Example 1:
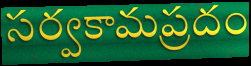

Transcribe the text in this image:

సర్వకామప్రదం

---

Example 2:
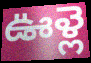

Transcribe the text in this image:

ఊళ్లె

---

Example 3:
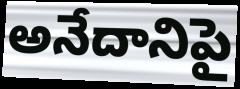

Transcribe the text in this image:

అనేదానిపై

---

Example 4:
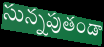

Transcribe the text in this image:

సున్నపుతండా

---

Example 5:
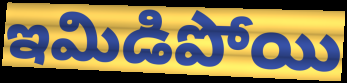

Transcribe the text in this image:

ఇమిడిపోయి